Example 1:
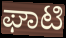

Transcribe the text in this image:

ಘಾಟಿ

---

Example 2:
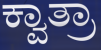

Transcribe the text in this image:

ಕ್ವಾತ್ರಾ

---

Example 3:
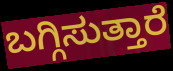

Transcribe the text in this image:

ಬಗ್ಗಿಸುತ್ತಾರೆ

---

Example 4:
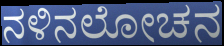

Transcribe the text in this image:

ನಳಿನಲೋಚನ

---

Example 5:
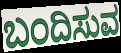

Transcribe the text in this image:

ಬಂದಿಸುವ